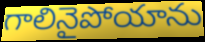
గాలినైపోయాను